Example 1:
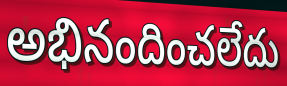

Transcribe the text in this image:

అభినందించలేదు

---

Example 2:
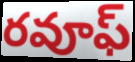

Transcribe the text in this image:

రవూఫ్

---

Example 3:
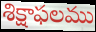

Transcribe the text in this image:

శిక్షాఫలము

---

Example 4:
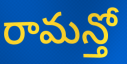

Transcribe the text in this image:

రామన్తో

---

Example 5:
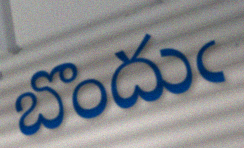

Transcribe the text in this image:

బొందుఁ